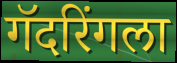
गॅदरिंगला